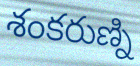
శంకరుణ్ని